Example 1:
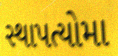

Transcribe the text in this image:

સ્થાપત્યોમા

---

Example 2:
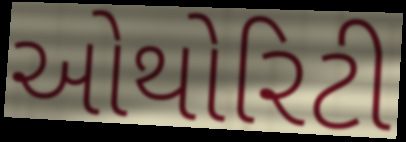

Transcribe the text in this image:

ઓથોરિટી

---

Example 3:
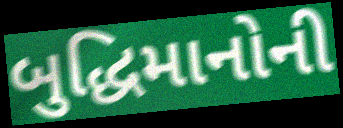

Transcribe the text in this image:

બુદ્ધિમાનોની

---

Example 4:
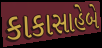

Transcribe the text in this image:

કાકાસાહેબે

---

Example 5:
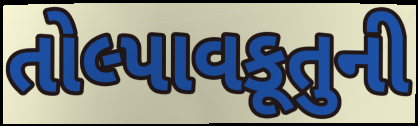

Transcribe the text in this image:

તોલ્પાવકૂતુની